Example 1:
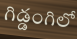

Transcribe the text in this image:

గిడ్డంగిలో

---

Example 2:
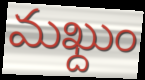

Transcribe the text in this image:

మఖ్దుం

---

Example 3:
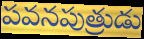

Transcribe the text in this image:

పవనపుత్రుడు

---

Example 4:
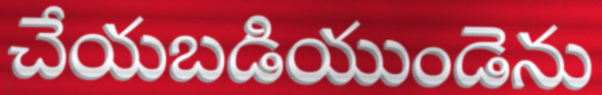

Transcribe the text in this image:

చేయబడియుండెను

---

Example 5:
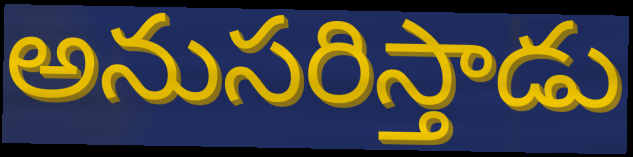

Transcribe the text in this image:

అనుసరిస్తాడు